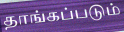
தாங்கப்படும்